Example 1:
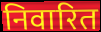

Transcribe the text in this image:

निवारित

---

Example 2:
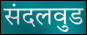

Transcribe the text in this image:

संदलवुड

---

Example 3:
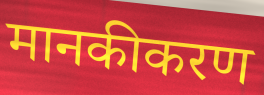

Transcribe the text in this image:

मानकीकरण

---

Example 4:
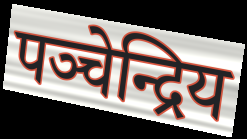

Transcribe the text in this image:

पञ्चेन्द्रिय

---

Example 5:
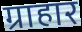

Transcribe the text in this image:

ग्राहार